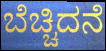
ಬೆಚ್ಚಿದನೆ